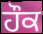
ਹੌਕ